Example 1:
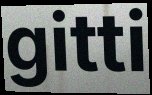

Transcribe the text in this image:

gitti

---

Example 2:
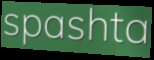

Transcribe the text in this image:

spashta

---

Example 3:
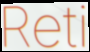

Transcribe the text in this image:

Reti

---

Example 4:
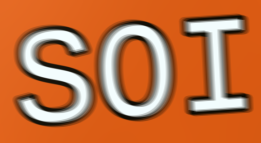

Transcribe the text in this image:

SOI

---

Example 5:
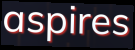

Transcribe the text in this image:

aspires